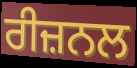
ਰੀਜ਼ਨਲ